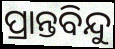
ପ୍ରାନ୍ତବିନ୍ଦୁ